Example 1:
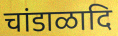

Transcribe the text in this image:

चांडाळादि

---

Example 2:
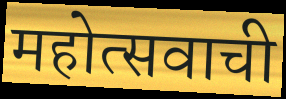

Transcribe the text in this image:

महोत्सवाची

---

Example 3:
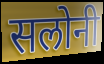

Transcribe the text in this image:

सलोनी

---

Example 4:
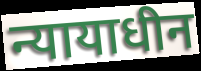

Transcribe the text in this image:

न्यायाधीन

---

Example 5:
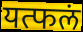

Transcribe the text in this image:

यत्फलं